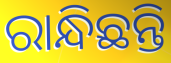
ରାନ୍ଧିଛନ୍ତି